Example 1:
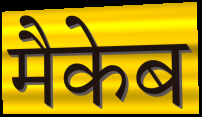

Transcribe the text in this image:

मैकेब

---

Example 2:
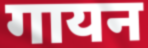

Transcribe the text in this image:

गायन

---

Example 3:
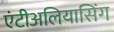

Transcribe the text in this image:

एंटीअलियासिंग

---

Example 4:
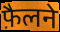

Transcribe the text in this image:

फ़ैलने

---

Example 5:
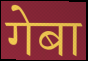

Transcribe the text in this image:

गेबा